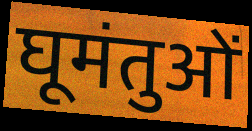
घूमंतुओं